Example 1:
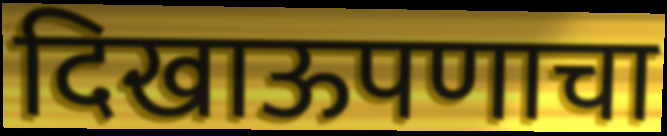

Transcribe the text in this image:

दिखाऊपणाचा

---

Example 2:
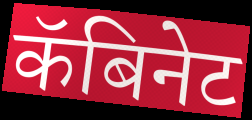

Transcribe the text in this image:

कॅबिनेट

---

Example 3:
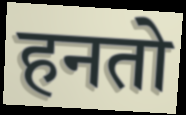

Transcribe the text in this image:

हनतो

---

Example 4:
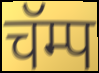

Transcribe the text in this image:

चॅम्प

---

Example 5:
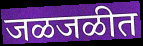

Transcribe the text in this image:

जळजळीत